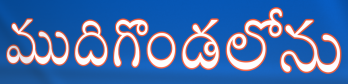
ముదిగొండలోను